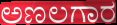
ಅಣಲಗಾರ